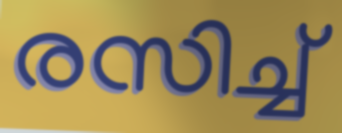
രസിച്ച്